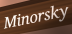
Minorsky